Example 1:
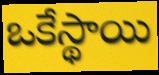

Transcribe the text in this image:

ఒకేస్థాయి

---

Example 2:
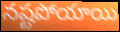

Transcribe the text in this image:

నష్టపోయాయి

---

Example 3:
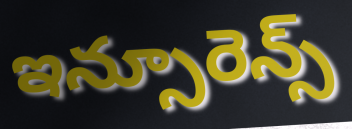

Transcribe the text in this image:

ఇన్సూరెన్స్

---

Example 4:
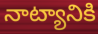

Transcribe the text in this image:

నాట్యానికి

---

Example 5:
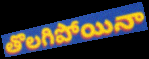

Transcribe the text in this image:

తొలగిపోయినా